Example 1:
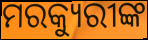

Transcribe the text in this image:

ମରକ୍ୟୁରୀଙ୍କ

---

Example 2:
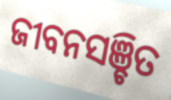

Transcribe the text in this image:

ଜୀବନସଞ୍ଚିତ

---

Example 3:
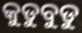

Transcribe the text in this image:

କୁଡୁବୁଡୁ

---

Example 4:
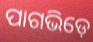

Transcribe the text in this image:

ପାଗଭିଡ଼େ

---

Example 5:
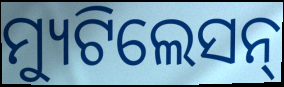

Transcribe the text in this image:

ମ୍ୟୁଟିଲେସନ୍